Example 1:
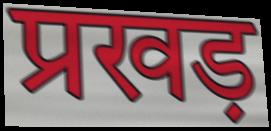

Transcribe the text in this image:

प्रखड़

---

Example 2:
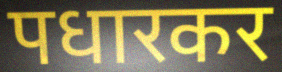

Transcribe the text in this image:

पधारकर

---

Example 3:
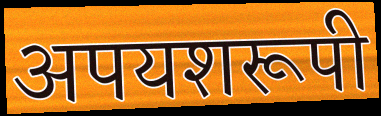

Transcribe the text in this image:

अपयशरूपी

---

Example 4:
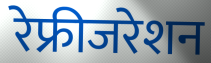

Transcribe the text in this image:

रेफ्रीजरेशन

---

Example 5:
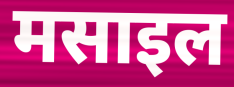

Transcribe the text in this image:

मसाइल